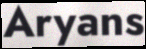
Aryans